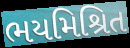
ભયમિશ્રિત